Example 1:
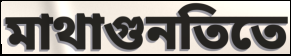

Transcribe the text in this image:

মাথাগুনতিতে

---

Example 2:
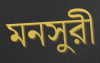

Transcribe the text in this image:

মনসুরী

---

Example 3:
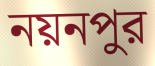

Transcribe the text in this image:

নয়নপুর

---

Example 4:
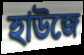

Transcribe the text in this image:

হাউজে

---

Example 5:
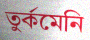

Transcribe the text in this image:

তুর্কমেনি